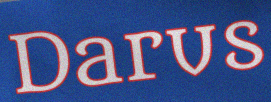
Darus